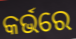
କର୍ଭରେ